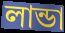
লান্ডা